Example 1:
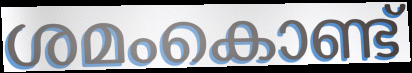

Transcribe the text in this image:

ശമംകൊണ്ട്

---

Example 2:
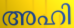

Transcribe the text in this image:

അഹി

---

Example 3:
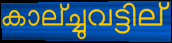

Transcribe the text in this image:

കാല്ച്ചുവട്ടില്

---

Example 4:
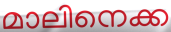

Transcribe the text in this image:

മാലിനെക്ക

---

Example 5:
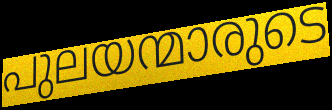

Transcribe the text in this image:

പുലയന്മാരുടെ